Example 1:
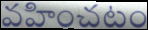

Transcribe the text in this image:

వహించటం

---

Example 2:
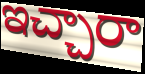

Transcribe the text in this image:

ఇచ్చారా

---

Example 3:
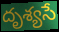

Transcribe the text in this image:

దృశ్యసే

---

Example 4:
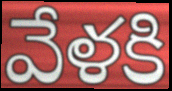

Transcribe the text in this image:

వేళకి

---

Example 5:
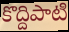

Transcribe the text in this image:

కొద్దిపాటి